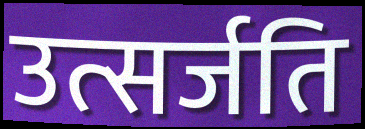
उत्सर्जति